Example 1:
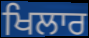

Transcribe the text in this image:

ਖਿਲਾਰ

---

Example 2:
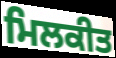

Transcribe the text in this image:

ਮਿਲਕੀਤ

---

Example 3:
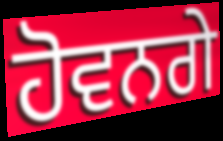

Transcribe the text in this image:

ਹੋਵਨਗੇ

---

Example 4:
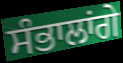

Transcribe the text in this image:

ਸੰਭਾਲਾਂਗੇ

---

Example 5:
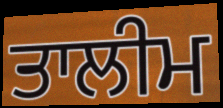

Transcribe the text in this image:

ਤਾਲੀਮ